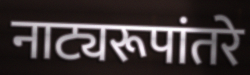
नाट्यरूपांतरे